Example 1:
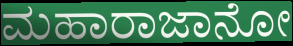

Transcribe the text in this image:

ಮಹಾರಾಜಾನೋ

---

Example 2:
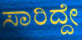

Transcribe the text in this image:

ಸಾರಿದ್ದೇ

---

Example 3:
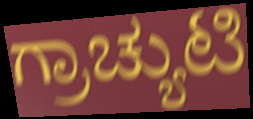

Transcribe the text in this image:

ಗ್ರಾಚ್ಯುಟಿ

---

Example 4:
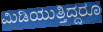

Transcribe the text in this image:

ಮಿಡಿಯುತ್ತಿದ್ದರೂ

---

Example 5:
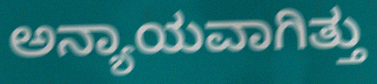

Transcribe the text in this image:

ಅನ್ಯಾಯವಾಗಿತ್ತು